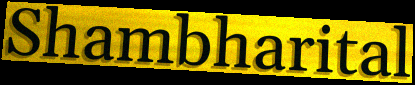
Shambharital